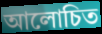
আলোচিত